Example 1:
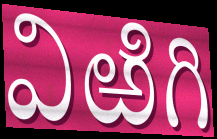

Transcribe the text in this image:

విఱిగి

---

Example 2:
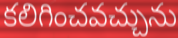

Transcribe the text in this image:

కలిగించవచ్చును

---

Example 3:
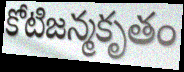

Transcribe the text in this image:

కోటిజన్మకృతం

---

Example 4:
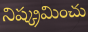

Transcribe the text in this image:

నిష్క్రమించు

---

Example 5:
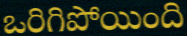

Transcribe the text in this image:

ఒరిగిపోయింది